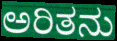
ಅರಿತನು